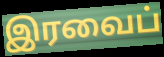
இரவைப்